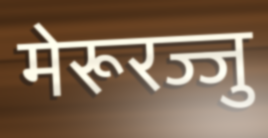
मेरूरज्जु